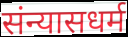
संन्यासधर्म